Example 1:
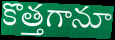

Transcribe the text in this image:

కొత్తగానూ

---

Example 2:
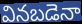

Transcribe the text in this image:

వినబడెనా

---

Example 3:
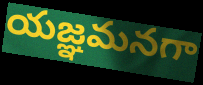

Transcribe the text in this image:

యజ్ఞమనగా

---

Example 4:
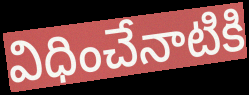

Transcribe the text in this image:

విధించేనాటికి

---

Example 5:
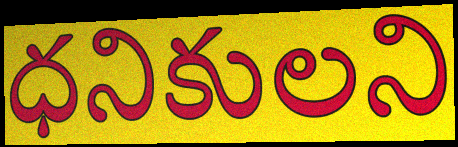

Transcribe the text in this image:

ధనికులని